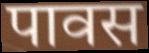
पावस